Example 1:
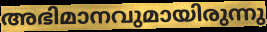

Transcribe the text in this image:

അഭിമാനവുമായിരുന്നു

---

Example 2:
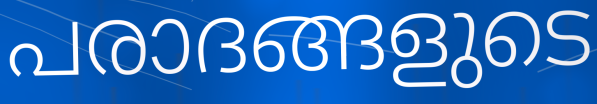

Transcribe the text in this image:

പരാദങ്ങളുടെ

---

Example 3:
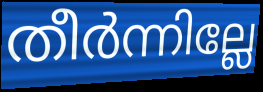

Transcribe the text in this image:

തീർന്നില്ലേ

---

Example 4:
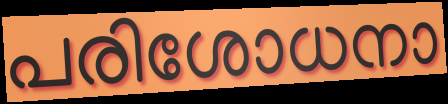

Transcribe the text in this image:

പരിശോധനാ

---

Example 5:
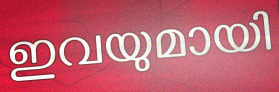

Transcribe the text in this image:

ഇവയുമായി